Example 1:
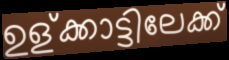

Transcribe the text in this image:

ഉള്ക്കാട്ടിലേക്ക്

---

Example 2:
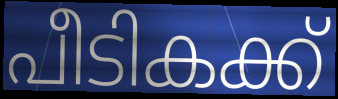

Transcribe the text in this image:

പീടികക്ക്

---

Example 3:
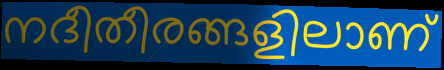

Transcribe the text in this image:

നദീതീരങ്ങളിലാണ്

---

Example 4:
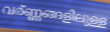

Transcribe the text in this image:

വര്ണ്ണങ്ങളിലുള്ള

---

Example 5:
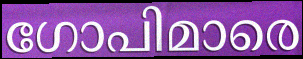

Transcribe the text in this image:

ഗോപിമാരെ